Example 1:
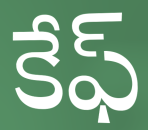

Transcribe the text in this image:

కేఫ్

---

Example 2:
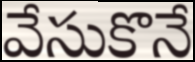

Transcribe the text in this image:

వేసుకొనే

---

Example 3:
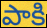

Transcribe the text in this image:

పాకి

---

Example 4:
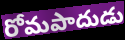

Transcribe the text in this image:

రోమపాదుడు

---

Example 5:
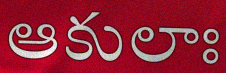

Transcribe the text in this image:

ఆకులాః